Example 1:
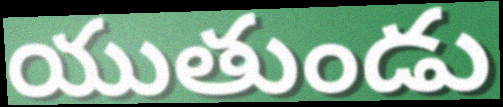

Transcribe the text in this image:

యుతుండు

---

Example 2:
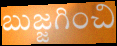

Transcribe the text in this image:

బుజ్జగించి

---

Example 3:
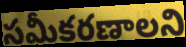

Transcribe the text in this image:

సమీకరణాలని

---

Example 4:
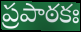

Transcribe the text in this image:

ప్రపాఠకః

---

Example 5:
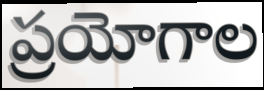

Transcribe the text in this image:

ప్రయోగాల